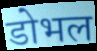
डोभल